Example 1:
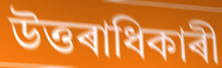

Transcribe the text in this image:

উত্তৰাধিকাৰী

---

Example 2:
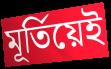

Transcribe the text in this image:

মূৰ্তিয়েই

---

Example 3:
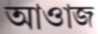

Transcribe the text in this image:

আওাজ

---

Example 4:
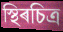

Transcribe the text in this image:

স্থিৰচিত্ৰ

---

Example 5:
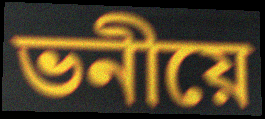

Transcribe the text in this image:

ভনীয়ে